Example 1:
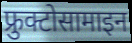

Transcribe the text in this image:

फ्रुक्टोसामाइन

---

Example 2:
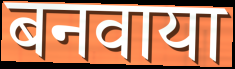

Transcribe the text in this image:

बनवाया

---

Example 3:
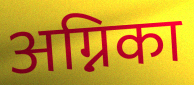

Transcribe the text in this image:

अग्निका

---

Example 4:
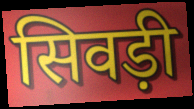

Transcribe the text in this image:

सिवड़ी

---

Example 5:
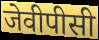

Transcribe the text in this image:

जेवीपीसी